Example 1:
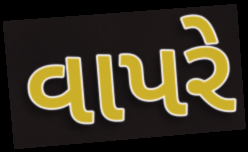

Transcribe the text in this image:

વાપરે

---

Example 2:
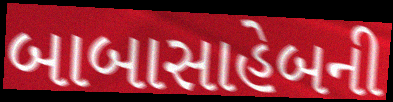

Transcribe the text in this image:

બાબાસાહેબની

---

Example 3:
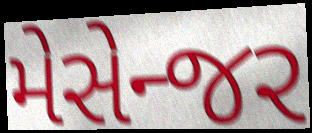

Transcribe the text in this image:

મેસેન્જર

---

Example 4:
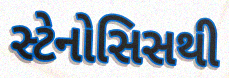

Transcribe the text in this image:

સ્ટેનોસિસથી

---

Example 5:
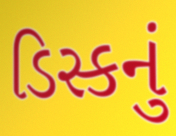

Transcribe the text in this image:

ડિસ્કનું